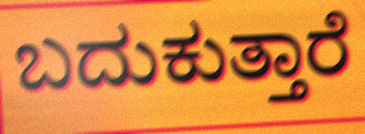
ಬದುಕುತ್ತಾರೆ